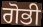
ਗੋਭੀ